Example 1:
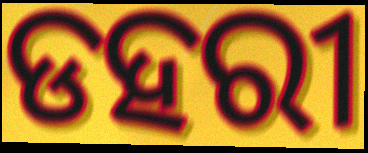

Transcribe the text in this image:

ଡହରୀ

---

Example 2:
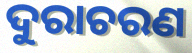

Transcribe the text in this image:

ଦୁରାଚରଣ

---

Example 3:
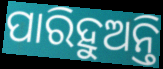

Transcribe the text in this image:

ପାରିହୁଅନ୍ତି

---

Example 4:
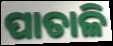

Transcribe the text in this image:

ପାତାଳି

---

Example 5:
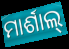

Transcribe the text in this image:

ମାର୍ଶାଲ୍